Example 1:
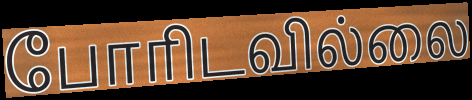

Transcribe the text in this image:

போரிடவில்லை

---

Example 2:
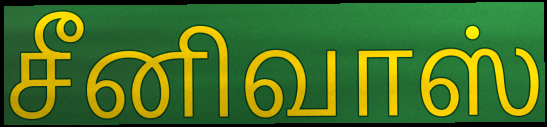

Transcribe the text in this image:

சீனிவாஸ்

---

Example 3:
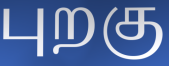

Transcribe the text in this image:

புறகு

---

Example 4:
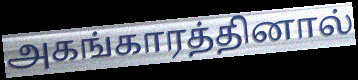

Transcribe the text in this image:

அகங்காரத்தினால்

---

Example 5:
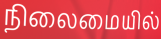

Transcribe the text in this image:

நிலைமையில்